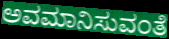
ಅವಮಾನಿಸುವಂತೆ